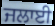
ਜਲਾਈ